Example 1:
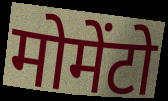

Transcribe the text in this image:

मोमेंटो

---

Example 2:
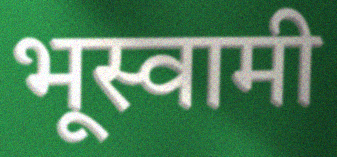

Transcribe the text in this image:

भूस्‍वामी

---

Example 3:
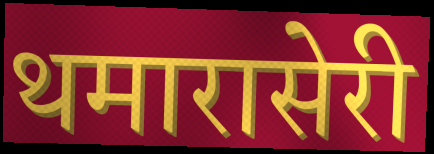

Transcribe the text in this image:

थमारासेरी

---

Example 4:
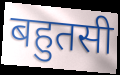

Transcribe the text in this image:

बहुतसी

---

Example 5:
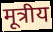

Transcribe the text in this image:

मूत्रीय